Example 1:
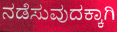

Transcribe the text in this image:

ನಡೆಸುವುದಕ್ಕಾಗಿ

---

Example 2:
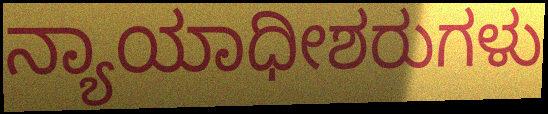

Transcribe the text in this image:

ನ್ಯಾಯಾಧೀಶರುಗಳು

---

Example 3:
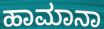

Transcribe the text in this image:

ಹಾಮಾನಾ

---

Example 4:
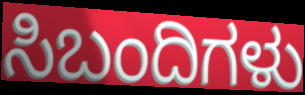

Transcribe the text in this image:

ಸಿಬಂದಿಗಳು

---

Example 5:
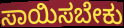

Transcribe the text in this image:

ಸಾಯಿಸಬೇಕು